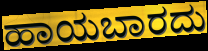
ಹಾಯಬಾರದು